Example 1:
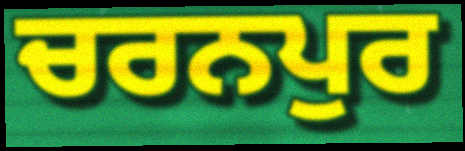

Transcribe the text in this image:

ਚਰਨਪੁਰ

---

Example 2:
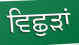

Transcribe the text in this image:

ਵਿਛੁੜਾਂ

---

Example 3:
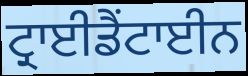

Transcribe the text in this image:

ਟ੍ਰਾਈਡੈਂਟਾਈਨ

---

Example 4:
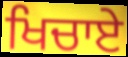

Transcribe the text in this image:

ਖਿਚਾਏ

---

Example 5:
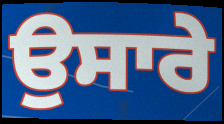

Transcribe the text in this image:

ਉਸਾਰੇ